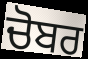
ਚੋਬਰ